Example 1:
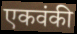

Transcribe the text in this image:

एकवंकी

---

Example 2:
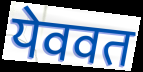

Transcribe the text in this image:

येववत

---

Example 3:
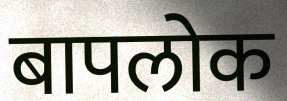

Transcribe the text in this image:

बापलोक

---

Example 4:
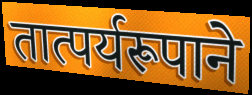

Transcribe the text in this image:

तात्पर्यरूपाने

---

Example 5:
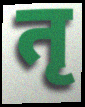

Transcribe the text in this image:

तृ